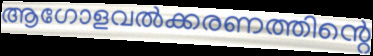
ആഗോളവൽക്കരണത്തിന്റെ